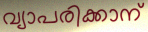
വ്യാപരിക്കാന്